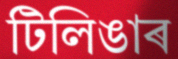
টিলিঙাৰ